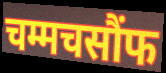
चम्मचसौंफ